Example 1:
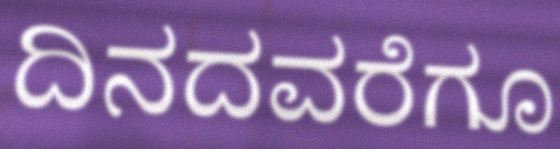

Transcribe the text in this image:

ದಿನದವರೆಗೂ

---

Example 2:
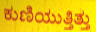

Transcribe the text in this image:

ಕುಣಿಯುತ್ತಿತ್ತು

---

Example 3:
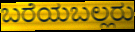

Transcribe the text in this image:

ಬರೆಯಬಲ್ಲರು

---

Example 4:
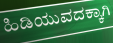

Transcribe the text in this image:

ಹಿಡಿಯುವದಕ್ಕಾಗಿ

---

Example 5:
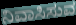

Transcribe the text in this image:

ನಿವಾಸಿಸುವ